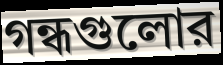
গন্ধগুলোর